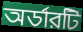
অর্ডারটি